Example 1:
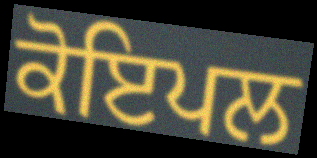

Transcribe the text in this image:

ਕੋਇਪਲ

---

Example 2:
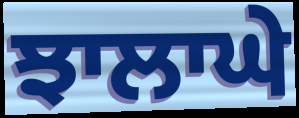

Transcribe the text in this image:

ਝਾਲਾਘੇ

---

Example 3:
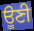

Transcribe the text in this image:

ਊਣੀ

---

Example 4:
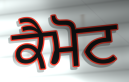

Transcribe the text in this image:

ਕੈਮੋਟ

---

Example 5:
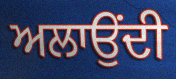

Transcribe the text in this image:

ਅਲਾਉਂਦੀ